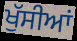
ਖੁੱਸੀਆਂ